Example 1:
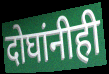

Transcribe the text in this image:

दोघांनीही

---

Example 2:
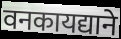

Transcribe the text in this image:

वनकायद्याने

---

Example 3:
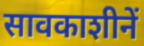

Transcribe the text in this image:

सावकाशीनें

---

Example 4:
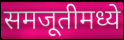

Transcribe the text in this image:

समजूतीमध्ये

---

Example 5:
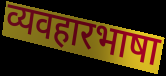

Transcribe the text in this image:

व्यवहारभाषा